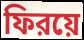
ফিরয়ে